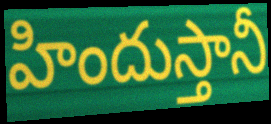
హిందుస్తానీ